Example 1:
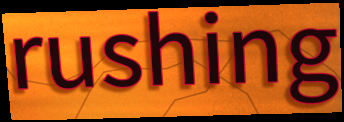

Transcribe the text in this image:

rushing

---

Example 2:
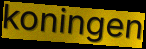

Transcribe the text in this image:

koningen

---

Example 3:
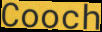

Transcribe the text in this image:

Cooch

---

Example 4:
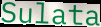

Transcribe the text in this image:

Sulata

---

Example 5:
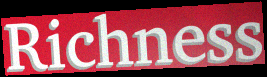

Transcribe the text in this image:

Richness